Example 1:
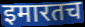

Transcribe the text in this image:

इमारतच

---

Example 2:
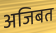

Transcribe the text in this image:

अजिबत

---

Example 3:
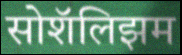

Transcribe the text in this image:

सोशॅलिझम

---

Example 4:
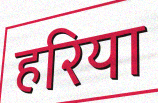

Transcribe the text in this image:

हरिया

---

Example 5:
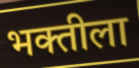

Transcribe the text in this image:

भक्तीला